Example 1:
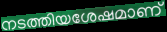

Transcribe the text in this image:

നടത്തിയശേഷമാണ്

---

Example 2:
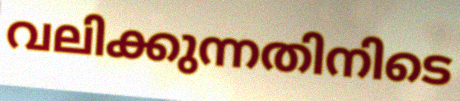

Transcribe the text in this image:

വലിക്കുന്നതിനിടെ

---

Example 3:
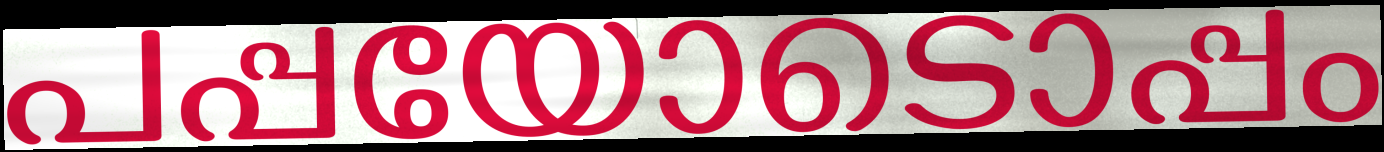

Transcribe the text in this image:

പപ്പയോടൊപ്പം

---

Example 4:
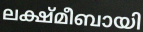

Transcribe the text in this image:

ലക്ഷ്മീബായി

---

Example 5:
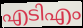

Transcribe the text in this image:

എടിഎം